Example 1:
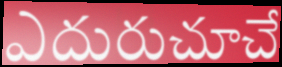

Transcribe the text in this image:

ఎదురుచూచే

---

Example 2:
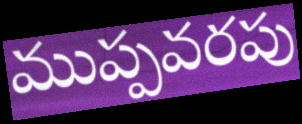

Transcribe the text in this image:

ముప్పవరపు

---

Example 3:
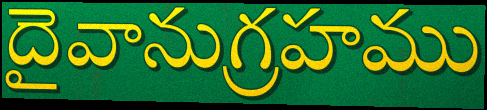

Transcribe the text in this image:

దైవానుగ్రహము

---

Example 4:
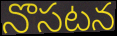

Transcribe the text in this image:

నొసటన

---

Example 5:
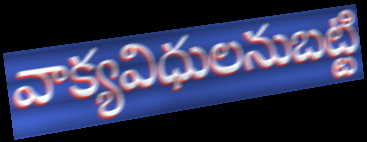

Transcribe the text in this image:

వాక్యవిధులనుబట్టి